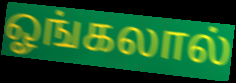
ஓங்கலால்